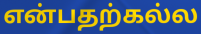
என்பதற்கல்ல